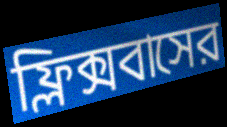
ফ্লিক্সবাসের